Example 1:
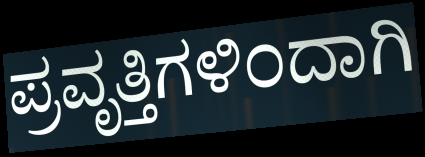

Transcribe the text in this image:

ಪ್ರವೃತ್ತಿಗಳಿಂದಾಗಿ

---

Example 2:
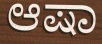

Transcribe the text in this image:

ಆಷಾ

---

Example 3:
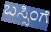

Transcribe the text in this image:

ಬಸ್ಸಿಂಗೆ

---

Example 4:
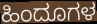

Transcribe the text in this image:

ಹಿಂದೂಗಳ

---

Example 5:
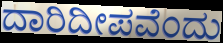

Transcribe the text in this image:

ದಾರಿದೀಪವೆಂದು